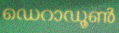
ഡെറാഡൂൺ